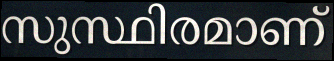
സുസ്ഥിരമാണ്